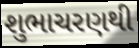
શુભાચરણથી